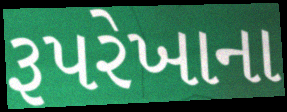
રૂપરેખાના